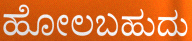
ಹೋಲಬಹುದು